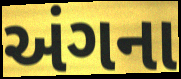
અંગના